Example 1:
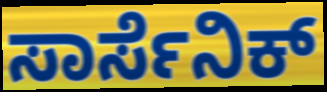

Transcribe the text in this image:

ಸಾರ್ಸೆನಿಕ್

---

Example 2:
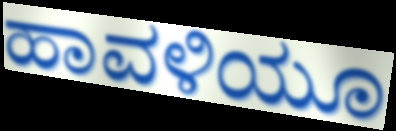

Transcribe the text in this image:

ಹಾವಳಿಯೂ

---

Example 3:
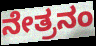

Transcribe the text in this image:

ನೇತ್ರನಂ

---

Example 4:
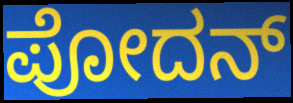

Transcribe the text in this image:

ಪೋದನ್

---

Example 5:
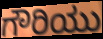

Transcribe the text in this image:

ಗೌರಿಯು